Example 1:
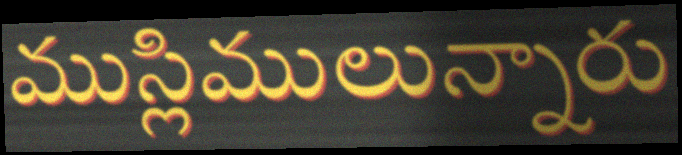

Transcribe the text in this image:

ముస్లిములున్నారు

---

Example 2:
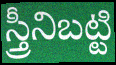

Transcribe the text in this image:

స్త్రీనిబట్టి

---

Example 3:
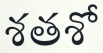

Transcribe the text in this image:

శతశో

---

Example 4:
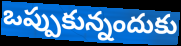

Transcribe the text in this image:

ఒప్పుకున్నందుకు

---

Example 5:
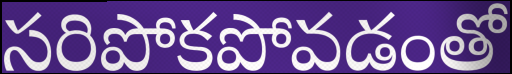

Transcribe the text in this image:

సరిపోకపోవడంతో